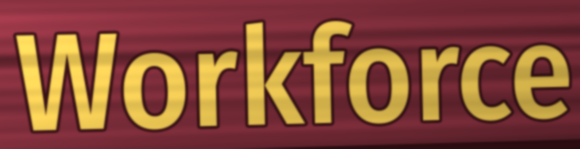
Workforce